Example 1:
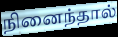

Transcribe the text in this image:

நினைந்தால்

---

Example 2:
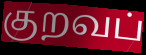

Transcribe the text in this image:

குறவப்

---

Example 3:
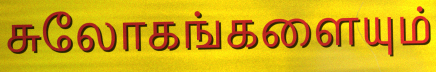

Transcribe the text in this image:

சுலோகங்களையும்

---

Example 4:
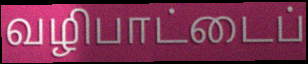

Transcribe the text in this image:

வழிபாட்டைப்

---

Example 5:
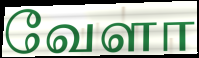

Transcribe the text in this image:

வேளா